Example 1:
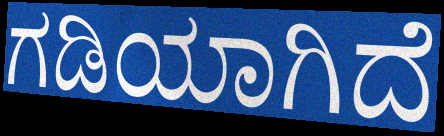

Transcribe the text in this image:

ಗಡಿಯಾಗಿದೆ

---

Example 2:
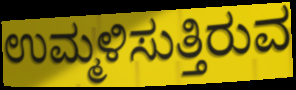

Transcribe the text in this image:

ಉಮ್ಮಳಿಸುತ್ತಿರುವ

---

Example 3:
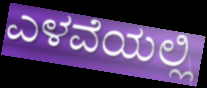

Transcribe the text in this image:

ಎಳವೆಯಲ್ಲಿ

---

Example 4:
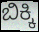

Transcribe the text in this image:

ಬಿಕ್ಕಿ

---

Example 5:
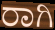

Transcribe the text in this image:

ರಾಗಿ